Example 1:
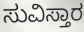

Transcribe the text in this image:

ಸುವಿಸ್ತಾರ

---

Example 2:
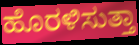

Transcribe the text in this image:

ಹೊರಳಿಸುತ್ತಾ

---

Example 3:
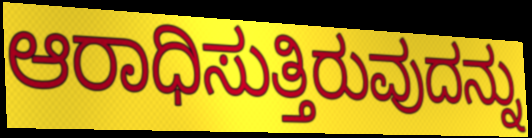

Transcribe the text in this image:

ಆರಾಧಿಸುತ್ತಿರುವುದನ್ನು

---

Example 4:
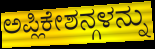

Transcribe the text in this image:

ಅಪ್ಲಿಕೇಶನ್ಗಳನ್ನು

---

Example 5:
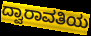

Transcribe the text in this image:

ದ್ವಾರಾವತಿಯ